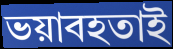
ভয়াবহতাই